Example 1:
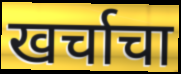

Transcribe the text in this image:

खर्चाचा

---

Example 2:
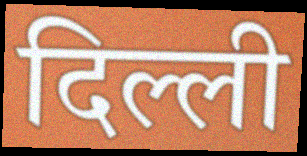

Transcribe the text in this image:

दिल्ली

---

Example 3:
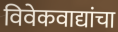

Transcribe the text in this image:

विवेकवाद्यांचा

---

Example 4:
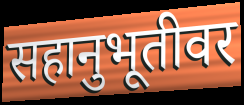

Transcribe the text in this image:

सहानुभूतीवर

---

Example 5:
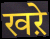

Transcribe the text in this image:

खऱे